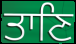
ਤਾਣਿ